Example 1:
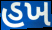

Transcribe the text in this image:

હખ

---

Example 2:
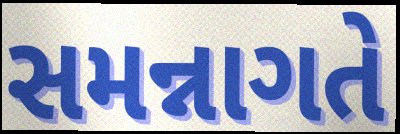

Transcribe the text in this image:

સમન્નાગતે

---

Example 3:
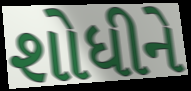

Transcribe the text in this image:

શોધીને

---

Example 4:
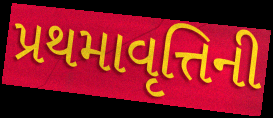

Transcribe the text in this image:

પ્રથમાવૃત્તિની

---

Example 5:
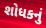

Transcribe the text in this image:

શોધકનું